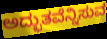
ಅದ್ಭುತವೆನ್ನಿಸುವ